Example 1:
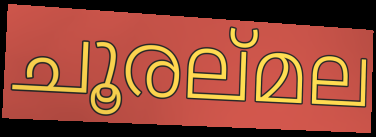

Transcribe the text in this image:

ചൂരല്മല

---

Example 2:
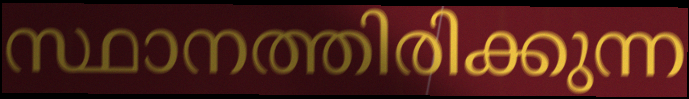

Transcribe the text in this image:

സ്ഥാനത്തിരിക്കുന്ന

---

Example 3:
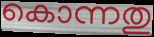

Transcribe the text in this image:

കൊന്നതു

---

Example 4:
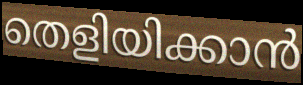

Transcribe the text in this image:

തെളിയിക്കാൻ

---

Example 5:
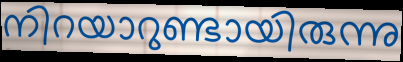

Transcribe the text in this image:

നിറയാറുണ്ടായിരുന്നു